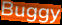
Buggy